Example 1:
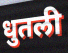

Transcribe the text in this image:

धुतली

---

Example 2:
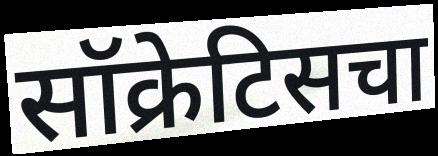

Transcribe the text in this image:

सॉक्रेटिसचा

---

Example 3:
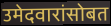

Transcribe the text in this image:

उमेदवारांसोबत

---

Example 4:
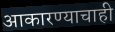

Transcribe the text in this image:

आकारण्याचाही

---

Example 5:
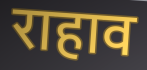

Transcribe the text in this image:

राहाव